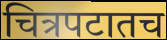
चित्रपटातच